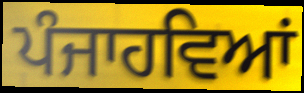
ਪੰਜਾਹਵਿਆਂ